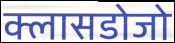
क्लासडोजो